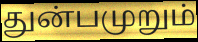
துன்பமுறும்